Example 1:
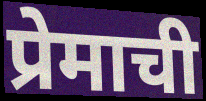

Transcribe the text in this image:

प्रेमाची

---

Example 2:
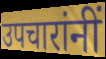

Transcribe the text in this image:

उपचारांनीं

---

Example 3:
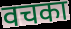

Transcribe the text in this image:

वचका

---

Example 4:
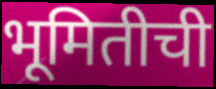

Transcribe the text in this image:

भूमितीची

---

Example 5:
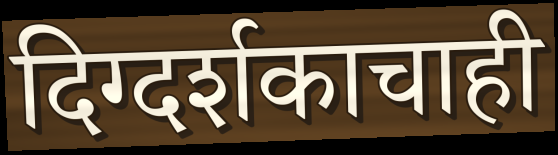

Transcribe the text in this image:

दिग्दर्शकाचाही